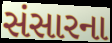
સંસારના